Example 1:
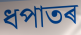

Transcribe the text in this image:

ধপাতৰ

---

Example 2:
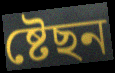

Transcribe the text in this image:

ষ্টেছন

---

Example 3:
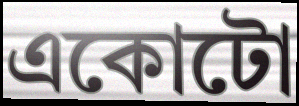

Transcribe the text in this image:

একোটো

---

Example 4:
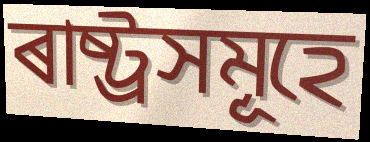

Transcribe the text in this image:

ৰাষ্ট্ৰসমূহে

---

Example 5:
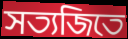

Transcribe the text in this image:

সত্যজিতে